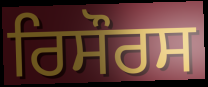
ਰਿਸੌਰਸ